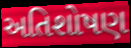
અતિશોષણ